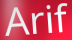
Arif